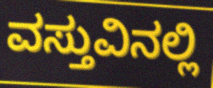
ವಸ್ತುವಿನಲ್ಲಿ